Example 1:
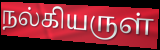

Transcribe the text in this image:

நல்கியருள்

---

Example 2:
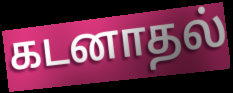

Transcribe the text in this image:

கடனாதல்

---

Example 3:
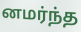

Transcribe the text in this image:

னமர்ந்த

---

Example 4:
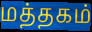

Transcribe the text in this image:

மத்தகம்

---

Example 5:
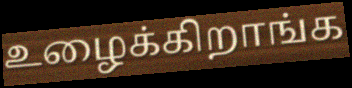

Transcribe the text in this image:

உழைக்கிறாங்க